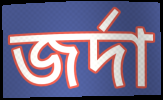
জর্দা